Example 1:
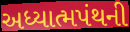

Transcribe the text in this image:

અધ્યાત્મપંથની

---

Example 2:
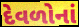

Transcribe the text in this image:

દેવળોનાં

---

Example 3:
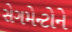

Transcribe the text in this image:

સેગમેન્ટોને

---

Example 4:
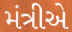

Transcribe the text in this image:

મંત્રીએ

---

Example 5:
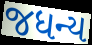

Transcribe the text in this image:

જધન્ય